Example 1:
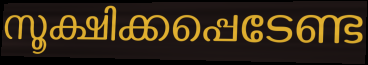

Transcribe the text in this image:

സൂക്ഷിക്കപ്പെടേണ്ട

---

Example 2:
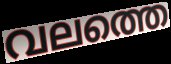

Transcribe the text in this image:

വലത്തെ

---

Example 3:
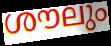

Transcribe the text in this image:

ശൗലും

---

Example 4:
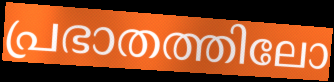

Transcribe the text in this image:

പ്രഭാതത്തിലോ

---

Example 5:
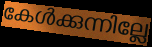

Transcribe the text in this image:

കേൾക്കുന്നില്ലേ